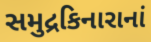
સમુદ્રકિનારાનાં